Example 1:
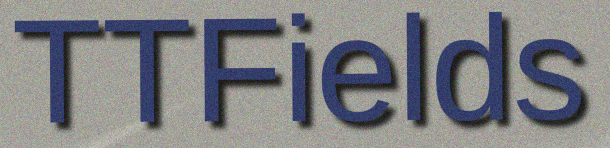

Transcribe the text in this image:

TTFields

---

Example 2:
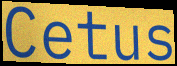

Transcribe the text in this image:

Cetus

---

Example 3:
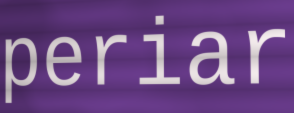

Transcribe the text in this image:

periar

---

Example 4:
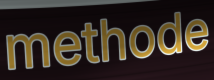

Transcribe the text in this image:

methode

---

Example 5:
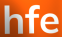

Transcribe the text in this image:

hfe